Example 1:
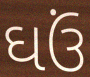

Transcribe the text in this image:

ઘઉં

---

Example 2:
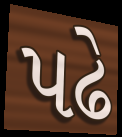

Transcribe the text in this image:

પઢે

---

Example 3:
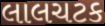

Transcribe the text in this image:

લાલચટક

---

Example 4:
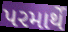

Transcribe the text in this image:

પરમાર્થે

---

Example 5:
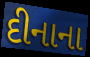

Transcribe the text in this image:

દીનાના